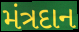
મંત્રદાન